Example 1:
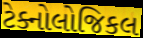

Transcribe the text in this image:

ટેક્નોલોજિકલ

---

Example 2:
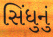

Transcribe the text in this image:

સિંધુનું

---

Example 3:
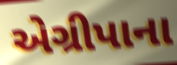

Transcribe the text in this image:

એગ્રીપાના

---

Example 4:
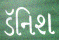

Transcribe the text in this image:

ડૅનિશ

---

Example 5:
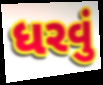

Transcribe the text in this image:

ધરવું